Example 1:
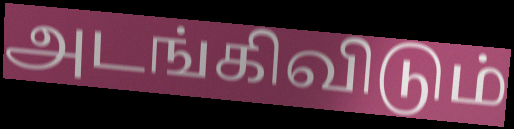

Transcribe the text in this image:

அடங்கிவிடும்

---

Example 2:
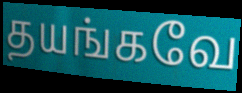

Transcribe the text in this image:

தயங்கவே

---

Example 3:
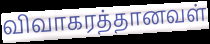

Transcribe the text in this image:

விவாகரத்தானவள்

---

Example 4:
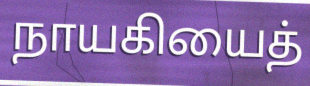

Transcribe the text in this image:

நாயகியைத்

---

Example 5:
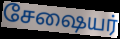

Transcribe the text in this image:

சேஷையர்